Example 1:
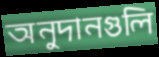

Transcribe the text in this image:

অনুদানগুলি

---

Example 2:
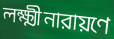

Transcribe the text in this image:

লক্ষ্মীনারায়ণে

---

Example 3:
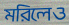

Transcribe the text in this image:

মরিলেও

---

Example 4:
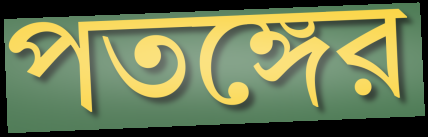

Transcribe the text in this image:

পতঙ্গের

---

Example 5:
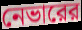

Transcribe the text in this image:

নেভারের